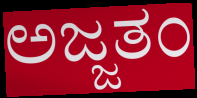
ಅಜ್ಜತಂ